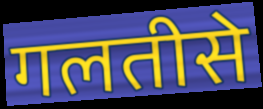
गलतीसे